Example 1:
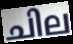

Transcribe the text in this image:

ചില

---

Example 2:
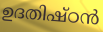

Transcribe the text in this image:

ഉദതിഷ്ഠൻ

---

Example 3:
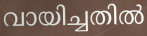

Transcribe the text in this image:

വായിച്ചതിൽ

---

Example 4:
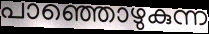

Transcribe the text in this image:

പാഞ്ഞൊഴുകുന്ന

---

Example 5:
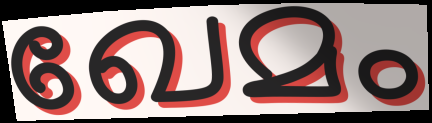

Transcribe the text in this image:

ഖേമം